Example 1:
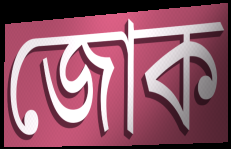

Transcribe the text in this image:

জোক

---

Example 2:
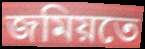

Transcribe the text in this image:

জমিয়তে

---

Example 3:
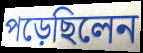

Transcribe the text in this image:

পড়েছিলেন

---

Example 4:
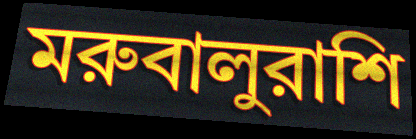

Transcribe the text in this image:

মরুবালুরাশি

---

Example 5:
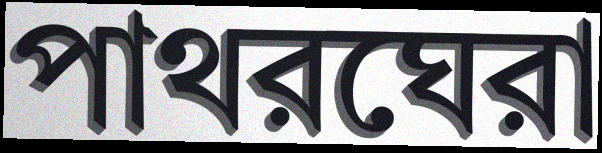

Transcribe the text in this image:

পাথরঘেরা